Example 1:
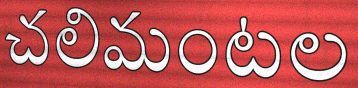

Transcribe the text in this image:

చలిమంటల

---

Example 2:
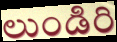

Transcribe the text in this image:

లుండిరి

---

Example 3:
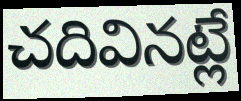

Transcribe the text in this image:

చదివినట్లే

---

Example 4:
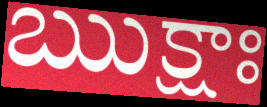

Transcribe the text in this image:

ఋక్షాః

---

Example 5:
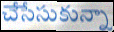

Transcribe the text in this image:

చేసేసుకున్నా